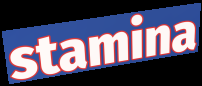
stamina